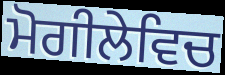
ਮੋਗੀਲੇਵਿਚ